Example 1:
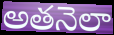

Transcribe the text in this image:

అతనెలా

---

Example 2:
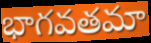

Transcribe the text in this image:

భాగవతమా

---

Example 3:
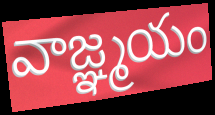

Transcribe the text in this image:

వాజ్ఞ్మయం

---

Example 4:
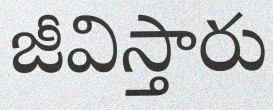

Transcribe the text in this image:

జీవిస్తారు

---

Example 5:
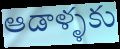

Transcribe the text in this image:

ఆడాళ్ళకు